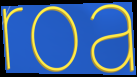
roa